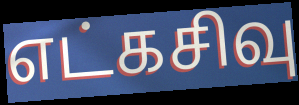
எட்கசிவு